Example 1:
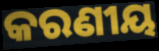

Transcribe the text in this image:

କରଣୀୟ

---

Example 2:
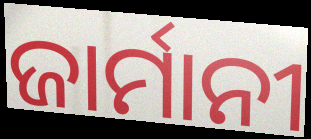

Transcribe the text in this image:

ଜାର୍ମାନୀ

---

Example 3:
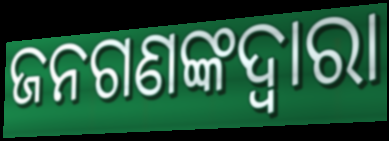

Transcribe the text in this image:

ଜନଗଣଙ୍କଦ୍ୱାରା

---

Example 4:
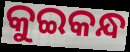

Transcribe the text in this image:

କୁଇକନ୍ଧ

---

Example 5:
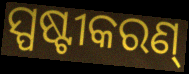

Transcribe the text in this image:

ସ୍ପଷ୍ଟୀକରଣ୍